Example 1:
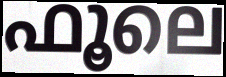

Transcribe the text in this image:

ഫൂലെ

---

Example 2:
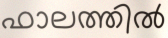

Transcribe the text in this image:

ഫാലത്തിൽ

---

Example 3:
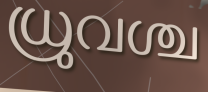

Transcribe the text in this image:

ധ്രുവശ്ച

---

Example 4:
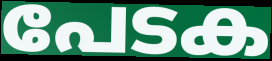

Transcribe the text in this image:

പേടക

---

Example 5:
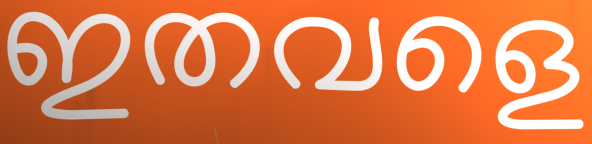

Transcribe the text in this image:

ഇതവളെ